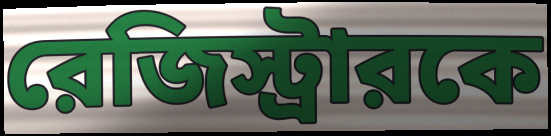
রেজিস্ট্রারকে